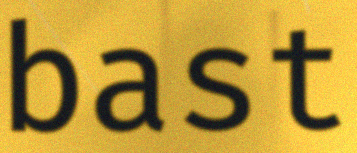
bast